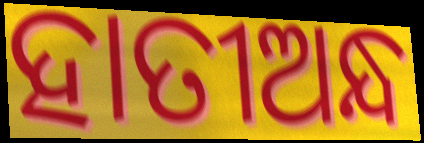
ହାତୀଅନ୍ଧ